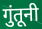
गुंतूनी